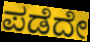
ಪಡೆದೇ